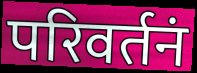
परिवर्तनं